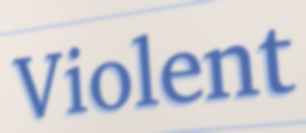
Violent